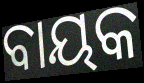
ବାୟକ